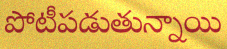
పోటీపడుతున్నాయి